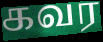
கவர